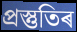
প্ৰস্তুতিৰ